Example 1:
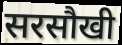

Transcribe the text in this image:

सरसौखी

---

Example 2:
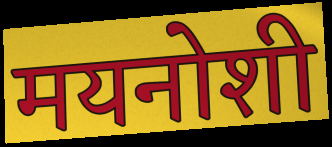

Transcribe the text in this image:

मयनोशी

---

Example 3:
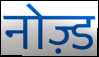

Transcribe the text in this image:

नोज़्ड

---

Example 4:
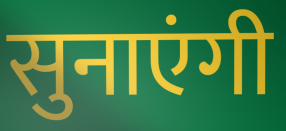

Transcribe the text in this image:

सुनाएंगी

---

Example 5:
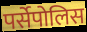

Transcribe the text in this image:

पर्सेपोलिस